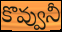
కొవ్వునీ